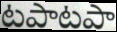
టపాటపా